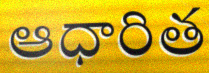
ఆధారిత